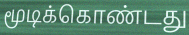
மூடிக்கொண்டது